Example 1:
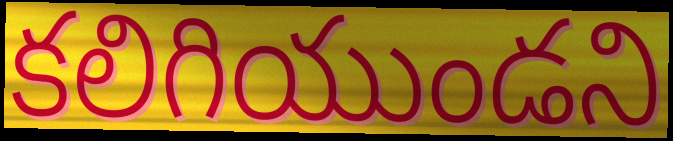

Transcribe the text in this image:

కలిగియుండని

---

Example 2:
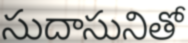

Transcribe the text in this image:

సుదాసునితో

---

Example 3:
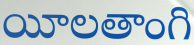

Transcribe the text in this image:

యీలతాంగి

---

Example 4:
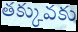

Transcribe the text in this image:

తక్కువకు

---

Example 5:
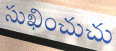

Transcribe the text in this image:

సుఖించుచు